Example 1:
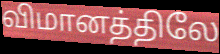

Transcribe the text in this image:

விமானத்திலே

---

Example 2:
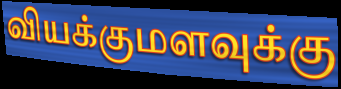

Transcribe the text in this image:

வியக்குமளவுக்கு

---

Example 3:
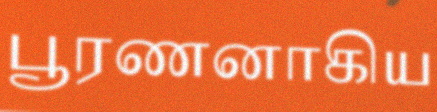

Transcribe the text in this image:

பூரணனாகிய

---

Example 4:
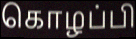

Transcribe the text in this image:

கொழப்பி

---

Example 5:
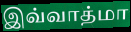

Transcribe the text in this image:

இவ்வாத்மா